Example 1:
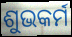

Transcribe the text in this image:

ଶୁଭକର୍ମ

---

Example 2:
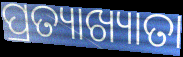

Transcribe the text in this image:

ପ୍ରତ୍ୟାଖ୍ୟାତା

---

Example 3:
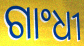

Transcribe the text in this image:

ଗାଂଧୀ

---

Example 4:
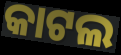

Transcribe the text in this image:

କାଟଲ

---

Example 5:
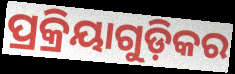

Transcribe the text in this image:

ପ୍ରକ୍ରିୟାଗୁଡ଼ିକର